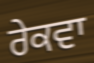
ਰੇਕਵਾ